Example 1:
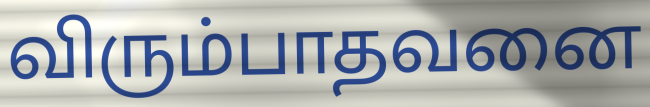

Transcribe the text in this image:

விரும்பாதவனை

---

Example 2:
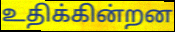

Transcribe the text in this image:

உதிக்கின்றன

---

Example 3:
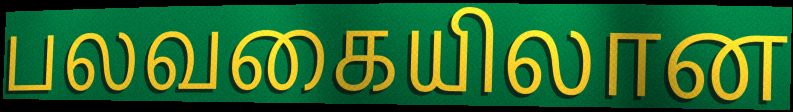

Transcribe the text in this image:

பலவகையிலான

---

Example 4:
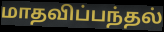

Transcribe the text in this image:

மாதவிப்பந்தல்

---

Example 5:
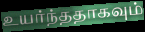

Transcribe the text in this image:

உயர்ந்ததாகவும்